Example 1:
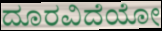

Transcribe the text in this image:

ದೂರವಿದೆಯೋ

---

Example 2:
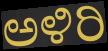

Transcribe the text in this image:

ಅಳಿರಿ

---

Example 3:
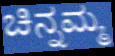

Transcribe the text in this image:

ಚಿನ್ನಮ್ಮ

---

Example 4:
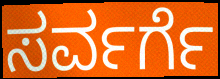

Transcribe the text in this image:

ಸರ್ವರ್ಗೆ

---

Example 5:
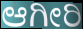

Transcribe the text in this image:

ಆಗೀರಿ